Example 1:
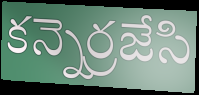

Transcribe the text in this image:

కన్నెర్రజేసి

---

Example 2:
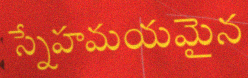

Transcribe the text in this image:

స్నేహమయమైన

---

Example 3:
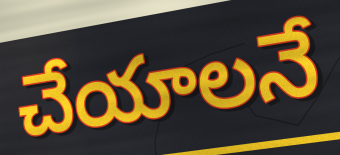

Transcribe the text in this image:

చేయాలనే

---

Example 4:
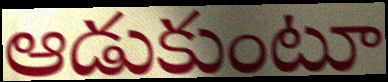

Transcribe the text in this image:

ఆడుకుంటూ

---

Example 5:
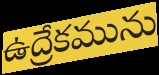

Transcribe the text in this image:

ఉద్రేకమును